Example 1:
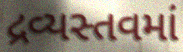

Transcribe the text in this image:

દ્રવ્યસ્તવમાં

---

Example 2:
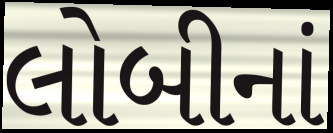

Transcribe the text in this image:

લોબીનાં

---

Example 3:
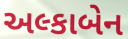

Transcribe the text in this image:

અલ્કાબેન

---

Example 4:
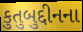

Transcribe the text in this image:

કુતુબુદ્દીનના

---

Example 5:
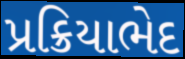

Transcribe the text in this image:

પ્રક્રિયાભેદ